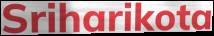
Sriharikota